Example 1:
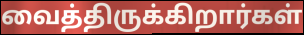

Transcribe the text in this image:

வைத்திருக்கிறார்கள்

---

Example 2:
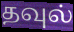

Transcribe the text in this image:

தவுல்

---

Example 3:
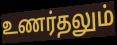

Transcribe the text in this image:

உணர்தலும்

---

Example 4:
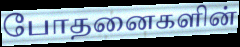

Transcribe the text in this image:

போதனைகளின்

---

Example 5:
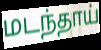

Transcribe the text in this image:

மடந்தாய்